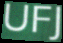
UFJ